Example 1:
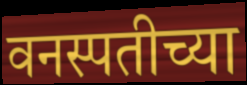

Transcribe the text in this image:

वनस्पतीच्या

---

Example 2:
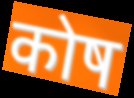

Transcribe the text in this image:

कोष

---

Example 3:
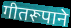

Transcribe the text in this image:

गीतरूपाने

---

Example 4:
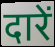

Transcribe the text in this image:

दारें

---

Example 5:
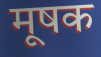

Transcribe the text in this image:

मूषक